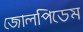
জোলপিডেম